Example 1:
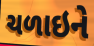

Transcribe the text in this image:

ચળાઇને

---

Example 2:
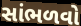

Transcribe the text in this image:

સાંભળવો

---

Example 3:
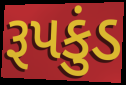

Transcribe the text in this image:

રૂપકુંડ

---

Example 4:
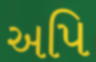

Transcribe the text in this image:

અપિ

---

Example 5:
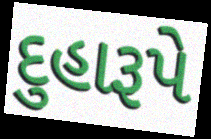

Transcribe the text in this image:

દુહારૂપે